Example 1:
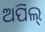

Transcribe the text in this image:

ଅପିଲ୍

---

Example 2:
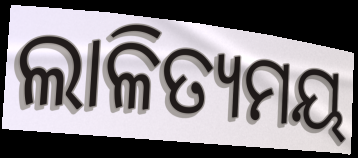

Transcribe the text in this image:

ଲାଳିତ୍ୟମୟ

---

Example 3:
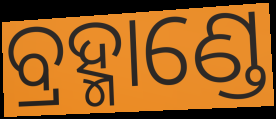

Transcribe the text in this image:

ବ୍ରହ୍ମାଣ୍ଡେ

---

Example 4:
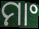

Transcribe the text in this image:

ମାଂ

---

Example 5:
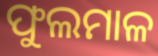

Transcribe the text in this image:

ଫୁଲମାଳ